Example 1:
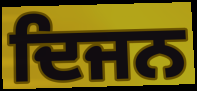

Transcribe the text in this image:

ਦਿਜਨ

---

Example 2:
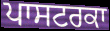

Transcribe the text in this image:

ਪਾਸਟਰਕਾ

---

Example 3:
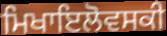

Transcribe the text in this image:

ਮਿਖਾਇਲੋਵਸਕੀ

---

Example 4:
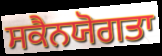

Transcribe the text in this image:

ਸਕੈਨਯੋਗਤਾ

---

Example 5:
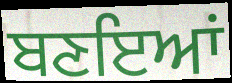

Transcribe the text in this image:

ਬਣਇਆਂ